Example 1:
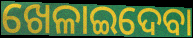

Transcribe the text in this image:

ଖେଳାଇଦେବା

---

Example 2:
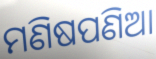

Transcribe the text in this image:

ମଣିଷପଣିଆ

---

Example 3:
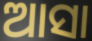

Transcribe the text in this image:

ଆସା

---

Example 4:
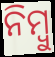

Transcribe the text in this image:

ନିମ୍ବୁ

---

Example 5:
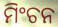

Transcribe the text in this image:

ମିଂଚନ